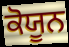
ਕੋਯੂਨ